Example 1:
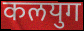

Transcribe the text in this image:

कलयुग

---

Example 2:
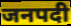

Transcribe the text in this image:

जनपदी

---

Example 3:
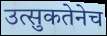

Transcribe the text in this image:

उत्सुकतेनेच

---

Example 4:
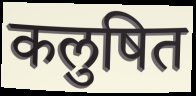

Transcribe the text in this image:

कलुषित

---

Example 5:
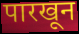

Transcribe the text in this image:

पारखून